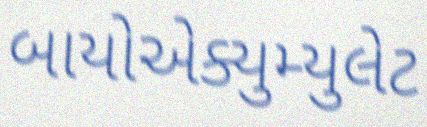
બાયોએક્યુમ્યુલેટ